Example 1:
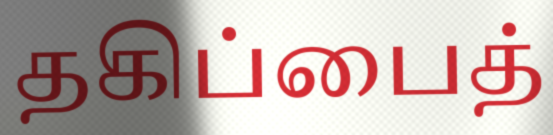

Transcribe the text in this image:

தகிப்பைத்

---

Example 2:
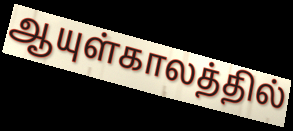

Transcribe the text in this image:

ஆயுள்காலத்தில்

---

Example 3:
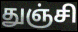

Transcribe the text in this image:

துஞ்சி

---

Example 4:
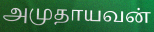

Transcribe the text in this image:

அமுதாயவன்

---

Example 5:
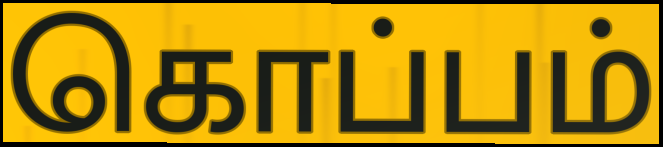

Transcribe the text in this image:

கொப்பம்